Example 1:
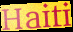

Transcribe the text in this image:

Haiti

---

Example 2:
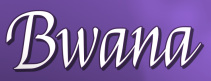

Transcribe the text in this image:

Bwana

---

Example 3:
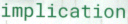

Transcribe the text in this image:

implication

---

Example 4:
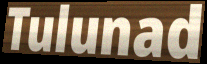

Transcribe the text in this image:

Tulunad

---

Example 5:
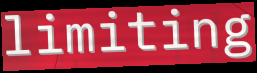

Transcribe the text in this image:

limiting